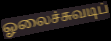
ஓலைச்சுவடிப்